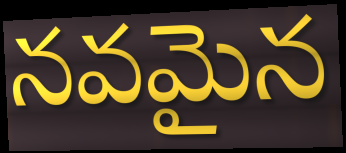
నవమైన